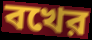
বখের